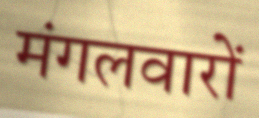
मंगलवारों